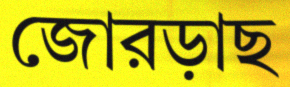
জোরড়াছ